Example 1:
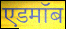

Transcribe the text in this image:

एडमॉब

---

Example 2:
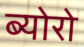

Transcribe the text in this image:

ब्योरो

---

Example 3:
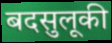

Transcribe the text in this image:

बदसुलूकी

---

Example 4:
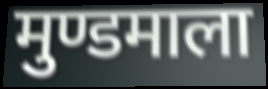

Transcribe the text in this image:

मुण्डमाला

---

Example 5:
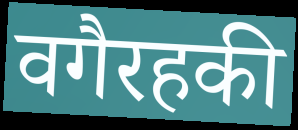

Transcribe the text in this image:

वगैरहकी